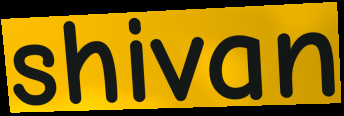
shivan